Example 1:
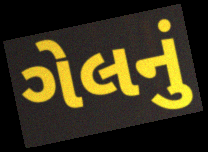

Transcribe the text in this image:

ગેલનું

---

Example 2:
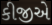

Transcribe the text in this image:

કીજીએ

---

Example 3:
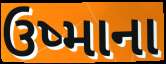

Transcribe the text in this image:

ઉષ્માના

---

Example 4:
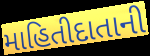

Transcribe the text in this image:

માહિતીદાતાની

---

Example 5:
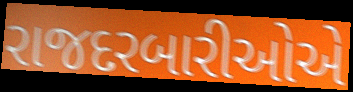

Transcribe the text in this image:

રાજદરબારીઓએ